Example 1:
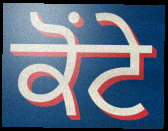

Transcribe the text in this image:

ਕੋਂਟੇ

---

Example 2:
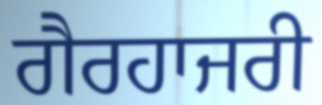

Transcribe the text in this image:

ਗੈਰਹਾਜਰੀ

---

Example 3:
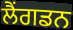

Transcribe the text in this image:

ਲੈਂਗਡਨ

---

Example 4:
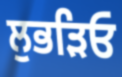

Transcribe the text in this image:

ਲੁਭੜਿਓ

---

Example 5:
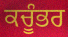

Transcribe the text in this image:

ਕਚੂੰਭਰ